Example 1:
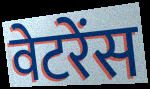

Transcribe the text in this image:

वेटरेंस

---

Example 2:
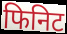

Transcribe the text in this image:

फिनिट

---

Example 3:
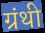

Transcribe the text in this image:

ग्रंथी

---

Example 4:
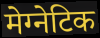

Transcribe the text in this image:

मेग्नेटिक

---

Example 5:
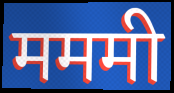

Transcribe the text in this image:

मममी